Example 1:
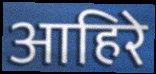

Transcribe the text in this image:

आहिरे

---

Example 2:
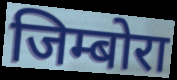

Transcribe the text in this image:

जिम्बोरा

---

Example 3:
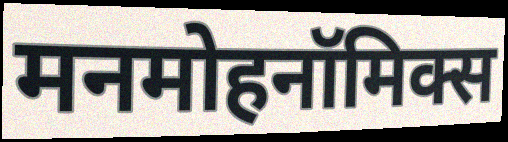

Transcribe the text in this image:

मनमोहनॉमिक्स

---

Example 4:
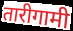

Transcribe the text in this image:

तारीगामी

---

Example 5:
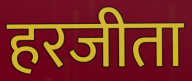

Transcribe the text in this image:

हरजीता